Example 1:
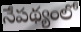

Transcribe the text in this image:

నేపథ్యంలో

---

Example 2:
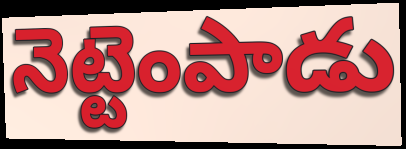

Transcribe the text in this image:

నెట్టెంపాడు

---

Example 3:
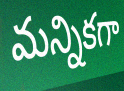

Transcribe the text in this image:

మన్నికగా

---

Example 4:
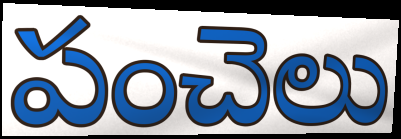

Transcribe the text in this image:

పంచెలు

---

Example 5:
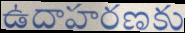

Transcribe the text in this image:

ఉదాహరణకు